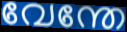
വേന്തേ